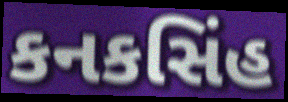
કનકસિંહ